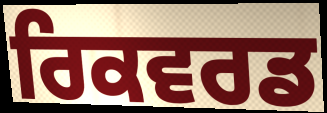
ਰਿਕਵਰਡ